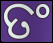
ତଂ